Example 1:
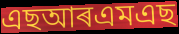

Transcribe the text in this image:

এছআৰএমএছ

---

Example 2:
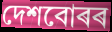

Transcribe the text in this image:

দেশবোৰৰ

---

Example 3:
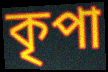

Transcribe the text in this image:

কৃপা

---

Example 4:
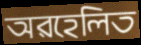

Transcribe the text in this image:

অৱহেলিত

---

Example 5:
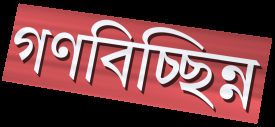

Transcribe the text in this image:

গণবিচ্ছিন্ন